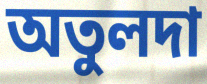
অতুলদা